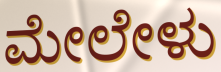
ಮೇಲೇಳು